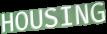
HOUSING